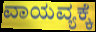
ವಾಯವ್ಯಕ್ಕೆ